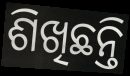
ଶିଖିଛନ୍ତି